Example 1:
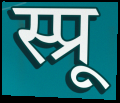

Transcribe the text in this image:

स्प्रू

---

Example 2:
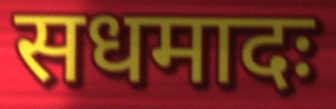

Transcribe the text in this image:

सधमादः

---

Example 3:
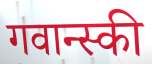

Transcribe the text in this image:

गवान्स्की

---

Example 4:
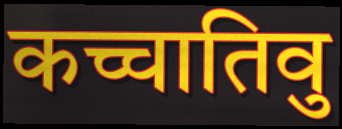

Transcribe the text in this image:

कच्चातिवु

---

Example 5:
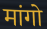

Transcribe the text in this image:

मांगो